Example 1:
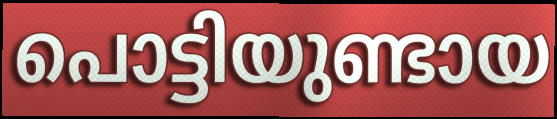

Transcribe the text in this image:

പൊട്ടിയുണ്ടായ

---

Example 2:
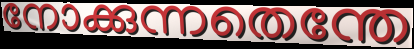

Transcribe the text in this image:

നോക്കുന്നതെന്തേ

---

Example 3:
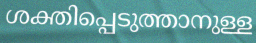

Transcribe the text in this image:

ശക്തിപ്പെടുത്താനുള്ള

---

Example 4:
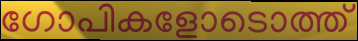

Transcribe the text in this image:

ഗോപികളോടൊത്ത്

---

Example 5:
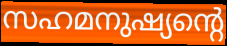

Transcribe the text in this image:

സഹമനുഷ്യന്റെ